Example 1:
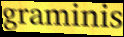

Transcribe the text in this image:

graminis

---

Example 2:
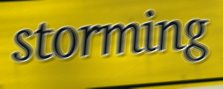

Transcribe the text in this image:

storming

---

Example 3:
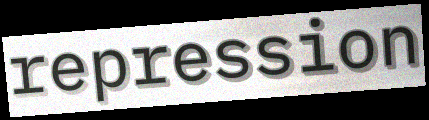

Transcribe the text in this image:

repression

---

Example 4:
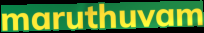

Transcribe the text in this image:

maruthuvam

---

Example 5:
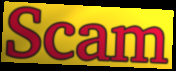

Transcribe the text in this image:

Scam